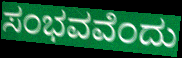
ಸಂಭವವೆಂದು